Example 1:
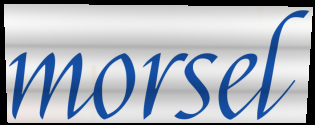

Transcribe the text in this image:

morsel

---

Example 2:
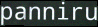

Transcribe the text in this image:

panniru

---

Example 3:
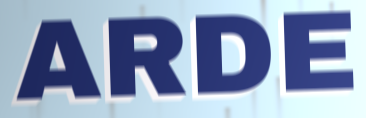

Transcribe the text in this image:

ARDE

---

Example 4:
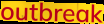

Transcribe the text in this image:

outbreak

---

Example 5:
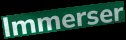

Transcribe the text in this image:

Immerser